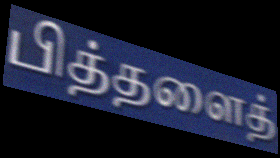
பித்தளைத்